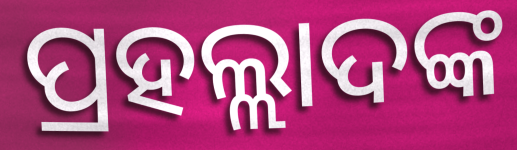
ପ୍ରହଲ୍ଲାଦଙ୍କ